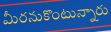
మీరనుకొంటున్నారు